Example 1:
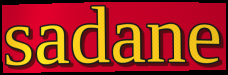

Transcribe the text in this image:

sadane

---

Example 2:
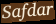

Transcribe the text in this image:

Safdar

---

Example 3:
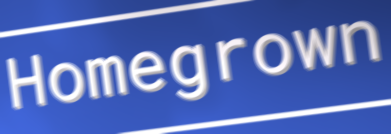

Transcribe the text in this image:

Homegrown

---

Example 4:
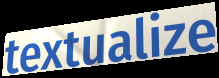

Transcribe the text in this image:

textualize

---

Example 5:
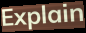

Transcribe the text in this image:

Explain